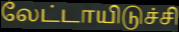
லேட்டாயிடுச்சி